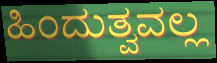
ಹಿಂದುತ್ವವಲ್ಲ